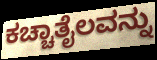
ಕಚ್ಚಾತೈಲವನ್ನು